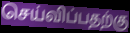
செய்விப்பதற்கு